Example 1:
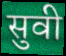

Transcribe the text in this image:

सुवी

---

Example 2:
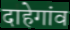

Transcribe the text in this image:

दाहेगांव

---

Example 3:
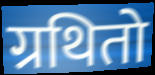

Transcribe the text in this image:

ग्रथितो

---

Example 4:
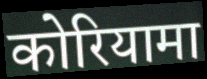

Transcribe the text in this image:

कोरियामा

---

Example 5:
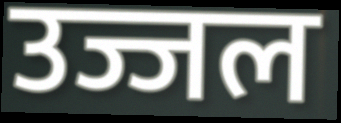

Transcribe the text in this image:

उज्जल